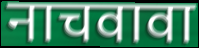
नाचवावा